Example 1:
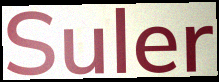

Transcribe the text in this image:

Suler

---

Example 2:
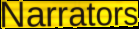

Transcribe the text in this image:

Narrators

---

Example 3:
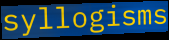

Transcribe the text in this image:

syllogisms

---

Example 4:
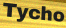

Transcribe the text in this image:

Tycho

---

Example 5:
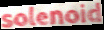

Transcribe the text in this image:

solenoid